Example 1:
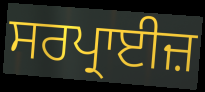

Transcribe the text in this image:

ਸਰਪ੍ਰਾਈਜ਼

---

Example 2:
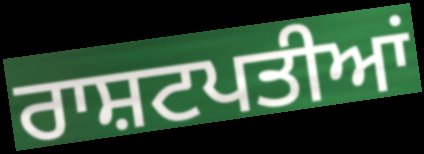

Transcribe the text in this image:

ਰਾਸ਼ਟਪਤੀਆਂ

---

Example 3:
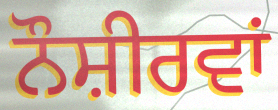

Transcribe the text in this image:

ਨੌਸ਼ੀਰਵਾਂ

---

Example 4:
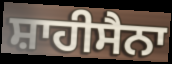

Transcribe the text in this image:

ਸ਼ਾਹੀਸੈਨਾ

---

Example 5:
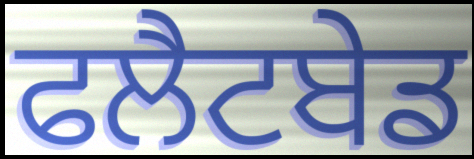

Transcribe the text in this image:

ਫਲੈਟਬੇਡ